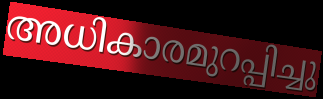
അധികാരമുറപ്പിച്ചു